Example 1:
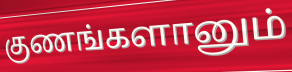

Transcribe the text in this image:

குணங்களானும்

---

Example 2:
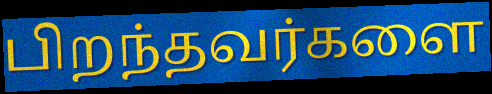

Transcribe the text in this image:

பிறந்தவர்களை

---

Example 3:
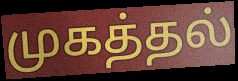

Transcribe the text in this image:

முகத்தல்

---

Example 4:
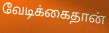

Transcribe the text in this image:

வேடிக்கைதான்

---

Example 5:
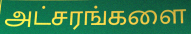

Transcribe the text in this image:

அட்சரங்களை